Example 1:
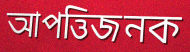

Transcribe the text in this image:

আপত্তিজনক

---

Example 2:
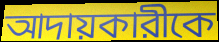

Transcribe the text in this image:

আদায়কারীকে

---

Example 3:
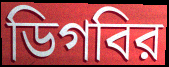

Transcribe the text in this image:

ডিগবির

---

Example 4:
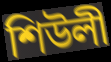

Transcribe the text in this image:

শিউলী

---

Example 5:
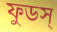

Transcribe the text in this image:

ফুডস্